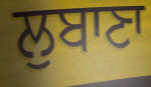
ਲੁਬਾਣਾ